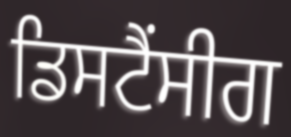
ਡਿਸਟੈਂਸੀਗ